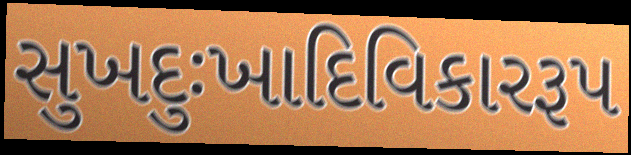
સુખદુઃખાદિવિકારરૂપ